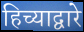
हिच्याद्वारे